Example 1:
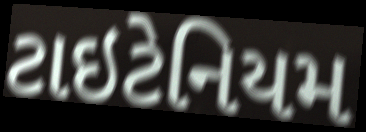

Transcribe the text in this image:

ટાઇટેનિયમ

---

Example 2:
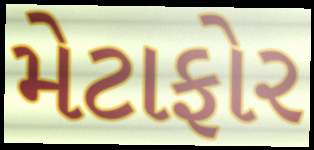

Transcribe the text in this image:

મેટાફોર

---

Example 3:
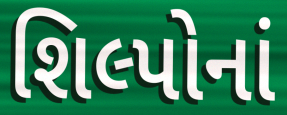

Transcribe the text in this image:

શિલ્પોનાં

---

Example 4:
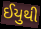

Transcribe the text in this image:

ઈયુથી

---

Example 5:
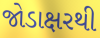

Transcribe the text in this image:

જોડાક્ષરથી